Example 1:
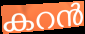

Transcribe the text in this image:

കറൻ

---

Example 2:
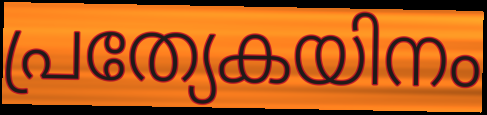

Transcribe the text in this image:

പ്രത്യേകയിനം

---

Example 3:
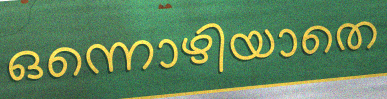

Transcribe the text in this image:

ഒന്നൊഴിയാതെ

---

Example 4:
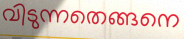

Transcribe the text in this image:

വിടുന്നതെങ്ങനെ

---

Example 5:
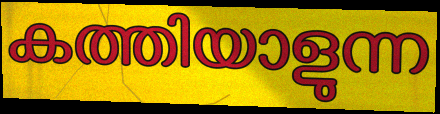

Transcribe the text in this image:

കത്തിയാളുന്ന